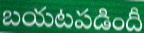
బయటపడిందీ